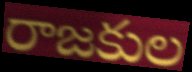
రాజకుల